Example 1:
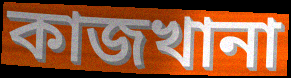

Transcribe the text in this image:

কাজখানা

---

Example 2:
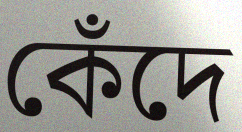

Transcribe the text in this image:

কেঁদে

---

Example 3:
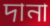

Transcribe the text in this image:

দানা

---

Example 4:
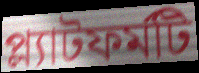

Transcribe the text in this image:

প্ল্যাটফর্মটি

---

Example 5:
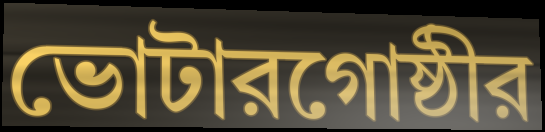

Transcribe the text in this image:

ভোটারগোষ্ঠীর